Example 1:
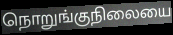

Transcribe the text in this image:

நொறுங்குநிலையை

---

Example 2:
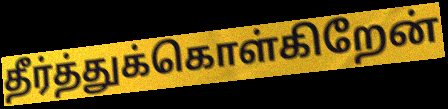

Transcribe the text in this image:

தீர்த்துக்கொள்கிறேன்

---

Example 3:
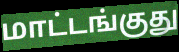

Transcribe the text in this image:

மாட்டங்குது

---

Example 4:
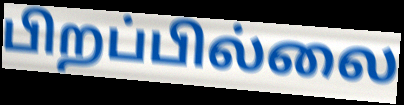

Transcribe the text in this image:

பிறப்பில்லை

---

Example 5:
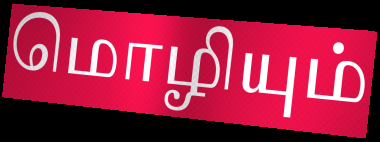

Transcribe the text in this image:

மொழியும்